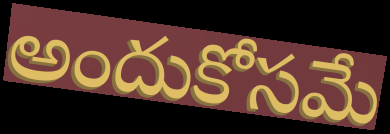
అందుకోసమే